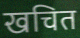
खचित